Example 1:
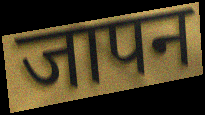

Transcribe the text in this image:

जापन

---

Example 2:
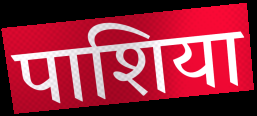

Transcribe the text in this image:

पाशिया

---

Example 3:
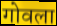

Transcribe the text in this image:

गोवला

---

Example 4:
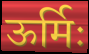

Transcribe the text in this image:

ऊर्मिः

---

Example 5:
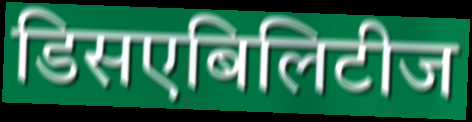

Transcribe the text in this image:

डिसएबिलिटीज